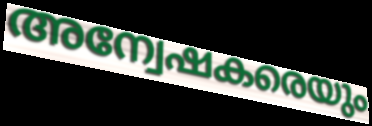
അന്വേഷകരെയും